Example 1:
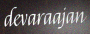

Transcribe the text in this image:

devaraajan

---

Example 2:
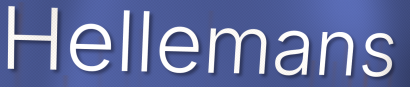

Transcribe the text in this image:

Hellemans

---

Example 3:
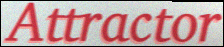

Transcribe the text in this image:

Attractor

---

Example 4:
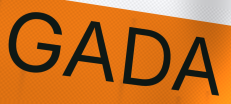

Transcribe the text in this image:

GADA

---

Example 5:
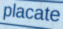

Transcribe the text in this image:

placate